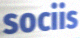
sociis